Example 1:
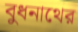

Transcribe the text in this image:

বুধনাথের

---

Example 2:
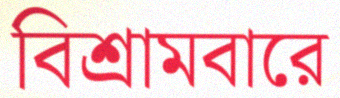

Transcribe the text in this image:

বিশ্রামবারে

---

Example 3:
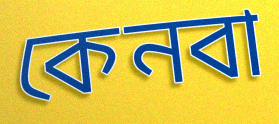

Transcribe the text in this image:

কেনবা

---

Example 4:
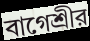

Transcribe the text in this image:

বাগেশ্রীর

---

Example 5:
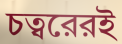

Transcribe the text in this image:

চত্বরেরই